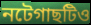
নটেগাছটিও